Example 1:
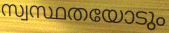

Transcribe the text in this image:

സ്വസ്ഥതയോടും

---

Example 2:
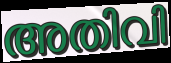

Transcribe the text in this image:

അതിവി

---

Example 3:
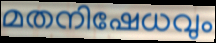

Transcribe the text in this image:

മതനിഷേധവും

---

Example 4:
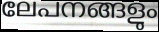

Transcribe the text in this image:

ലേപനങ്ങളും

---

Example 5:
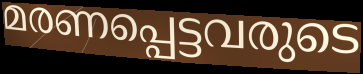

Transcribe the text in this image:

മരണപ്പെട്ടവരുടെ